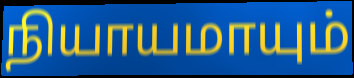
நியாயமாயும்